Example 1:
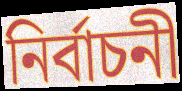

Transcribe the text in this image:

নিৰ্বাচনী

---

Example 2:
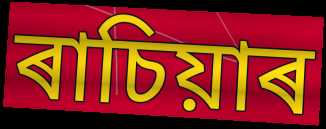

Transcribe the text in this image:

ৰাচিয়াৰ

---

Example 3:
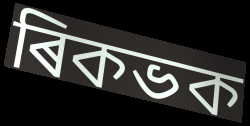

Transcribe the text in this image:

ৰিকভক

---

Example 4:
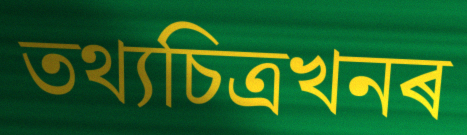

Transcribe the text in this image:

তথ্যচিত্ৰখনৰ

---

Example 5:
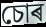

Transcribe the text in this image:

চোৰ